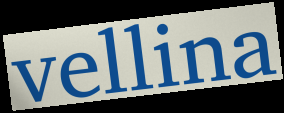
vellina